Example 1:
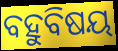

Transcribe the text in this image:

ବହୁବିଷୟ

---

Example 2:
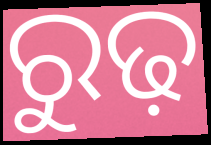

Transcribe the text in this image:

ରୁଢ଼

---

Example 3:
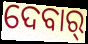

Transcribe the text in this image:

ଦେବାର୍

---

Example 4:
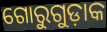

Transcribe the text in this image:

ଗୋରୁଗୁଡ଼ାକ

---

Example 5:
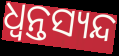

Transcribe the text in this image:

ଧ୍ଵନ୍ତସ୍ୟନ୍ଦ